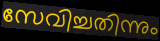
സേവിച്ചതിന്നും